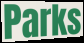
Parks